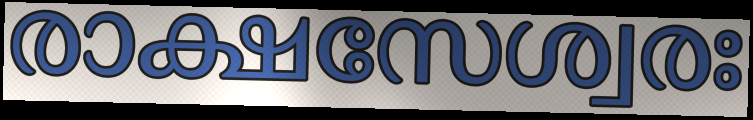
രാക്ഷസേശ്വരഃ